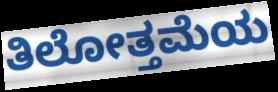
ತಿಲೋತ್ತಮೆಯ